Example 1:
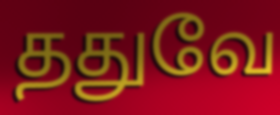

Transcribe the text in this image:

ததுவே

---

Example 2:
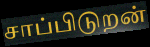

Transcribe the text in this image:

சாப்பிடுறன்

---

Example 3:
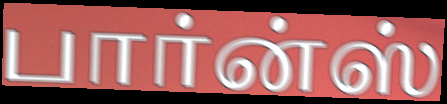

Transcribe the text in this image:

பார்ன்ஸ்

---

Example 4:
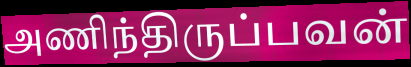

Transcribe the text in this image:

அணிந்திருப்பவன்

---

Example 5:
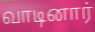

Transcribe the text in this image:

வாடினார்